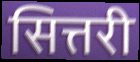
सित्तरी